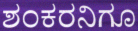
ಶಂಕರನಿಗೂ